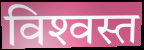
विश्‍वस्त